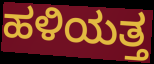
ಹಳಿಯತ್ತ